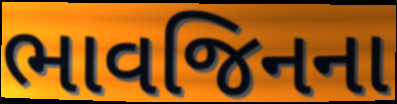
ભાવજિનના